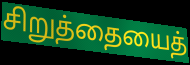
சிறுத்தையைத்